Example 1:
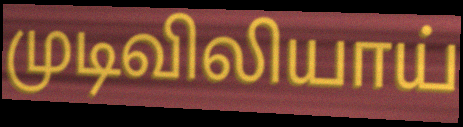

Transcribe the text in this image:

முடிவிலியாய்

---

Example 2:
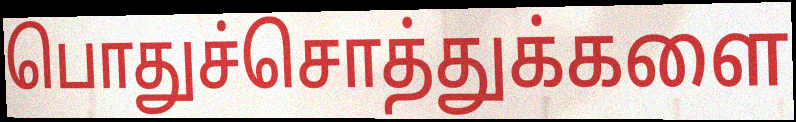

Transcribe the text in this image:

பொதுச்சொத்துக்களை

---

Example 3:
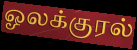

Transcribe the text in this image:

ஓலக்குரல்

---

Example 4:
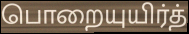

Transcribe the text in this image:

பொறையுயிர்த்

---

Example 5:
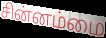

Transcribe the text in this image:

சின்னம்மை